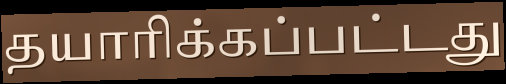
தயாரிக்கப்பட்டது